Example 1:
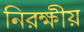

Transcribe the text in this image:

নিরক্ষীয়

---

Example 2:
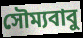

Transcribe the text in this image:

সৌম্যবাবু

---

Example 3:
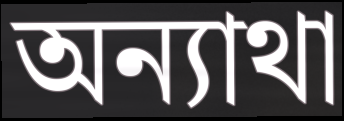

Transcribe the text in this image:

অন্যাথা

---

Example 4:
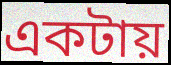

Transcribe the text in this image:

একটায়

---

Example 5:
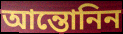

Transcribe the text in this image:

আন্তোনিন